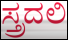
ಸ್ತ್ರದಲಿ